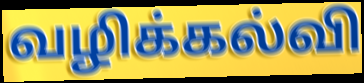
வழிக்கல்வி